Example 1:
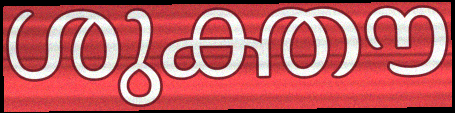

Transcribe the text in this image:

ശുക്തൗ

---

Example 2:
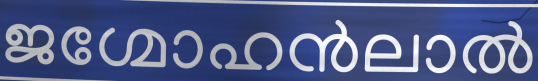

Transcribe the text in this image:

ജഗ്മോഹൻലാൽ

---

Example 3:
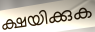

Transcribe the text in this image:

ക്ഷയിക്കുക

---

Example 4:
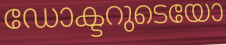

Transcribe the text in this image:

ഡോക്ടറുടെയോ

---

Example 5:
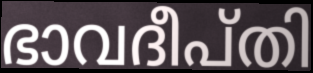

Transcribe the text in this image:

ഭാവദീപ്തി